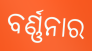
ବର୍ଣ୍ଣନାର